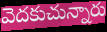
వెదకుచున్నారు